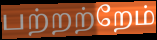
பற்றற்றேம்